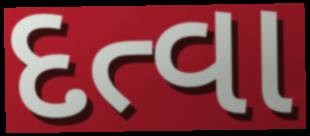
દત્વા